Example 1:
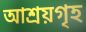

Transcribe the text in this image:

আশ্ৰয়গৃহ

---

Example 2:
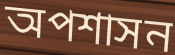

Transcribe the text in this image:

অপশাসন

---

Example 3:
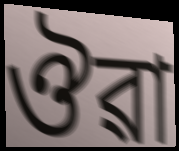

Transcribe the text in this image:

ঔৱা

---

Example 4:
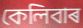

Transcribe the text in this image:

কেলিবাৰ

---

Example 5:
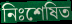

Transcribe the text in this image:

নিঃশেষিত